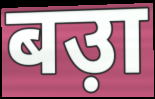
बउ़ा